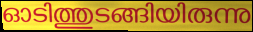
ഓടിത്തുടങ്ങിയിരുന്നു